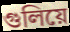
গুলিয়ে